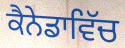
ਕੈਨੇਡਾਵਿੱਚ